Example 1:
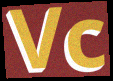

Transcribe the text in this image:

Vc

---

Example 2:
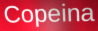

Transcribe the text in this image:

Copeina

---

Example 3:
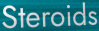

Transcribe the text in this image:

Steroids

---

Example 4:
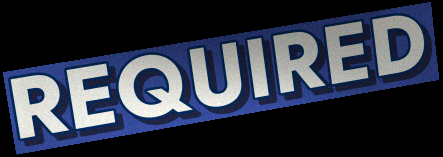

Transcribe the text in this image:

REQUIRED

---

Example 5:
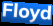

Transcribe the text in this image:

Floyd